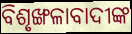
ବିଶୃଙ୍ଖଳାବାଦୀଙ୍କ